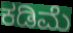
ಕಡಿಮೆ